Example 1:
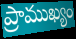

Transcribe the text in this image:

ప్రాముఖ్యం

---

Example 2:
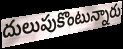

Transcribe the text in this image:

దులుపుకొంటున్నారు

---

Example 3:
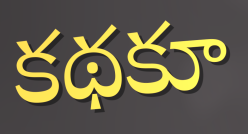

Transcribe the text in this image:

కథకూ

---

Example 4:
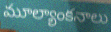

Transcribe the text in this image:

మూల్యాంకనాలు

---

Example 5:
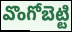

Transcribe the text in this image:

వొంగోబెట్టి